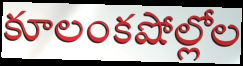
కూలంకషోల్లోల